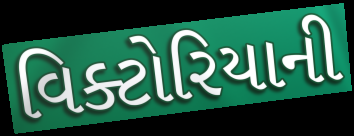
વિક્ટોરિયાની